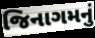
જિનાગમનું